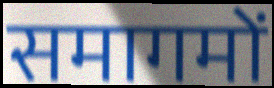
समागमों